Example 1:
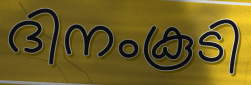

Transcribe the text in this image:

ദിനംകൂടി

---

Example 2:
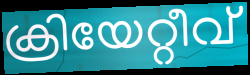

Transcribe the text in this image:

ക്രിയേറ്റീവ്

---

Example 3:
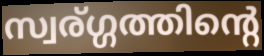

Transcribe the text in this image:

സ്വര്ഗ്ഗത്തിന്റെ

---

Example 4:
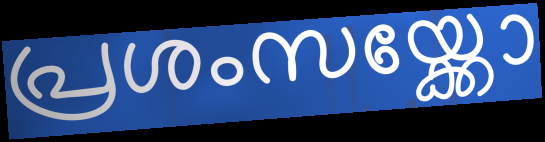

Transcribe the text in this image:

പ്രശംസയ്ക്കോ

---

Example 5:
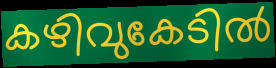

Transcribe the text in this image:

കഴിവുകേടിൽ